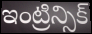
ఇంట్రిన్సిక్